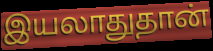
இயலாதுதான்